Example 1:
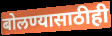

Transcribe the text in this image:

बोलण्यासाठीही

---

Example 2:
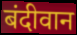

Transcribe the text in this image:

बंदीवान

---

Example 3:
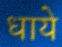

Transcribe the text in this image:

धाये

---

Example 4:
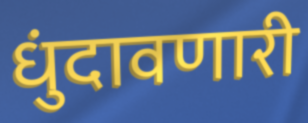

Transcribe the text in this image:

धुंदावणारी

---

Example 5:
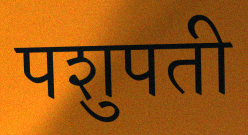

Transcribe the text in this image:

पशुपती